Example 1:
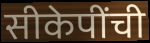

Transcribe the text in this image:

सीकेपींची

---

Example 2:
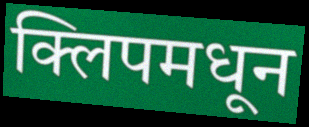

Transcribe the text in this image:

क्लिपमधून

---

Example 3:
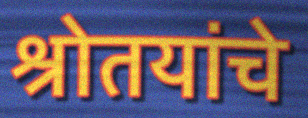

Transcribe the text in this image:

श्रोतयांचे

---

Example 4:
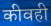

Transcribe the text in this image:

कीवही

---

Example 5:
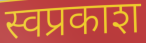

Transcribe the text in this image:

स्वप्रकाश